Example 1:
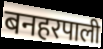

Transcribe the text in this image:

बनहरपाली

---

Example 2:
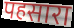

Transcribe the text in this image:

पहसारा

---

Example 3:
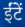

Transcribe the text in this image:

ईंटें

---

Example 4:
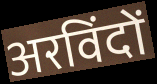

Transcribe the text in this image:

अरविंदों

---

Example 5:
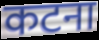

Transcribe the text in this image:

कटना